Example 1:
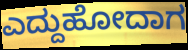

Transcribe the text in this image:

ಎದ್ದುಹೋದಾಗ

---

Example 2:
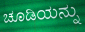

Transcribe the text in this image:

ಚೂಡಿಯನ್ನು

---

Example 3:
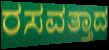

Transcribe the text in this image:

ರಸವತ್ತಾದ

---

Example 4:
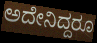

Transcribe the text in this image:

ಅದೇನಿದ್ದರೂ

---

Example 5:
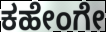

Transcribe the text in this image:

ಕಹೇಂಗೇ